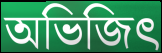
অভিজিৎ